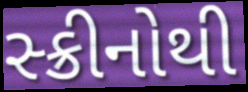
સ્ક્રીનોથી